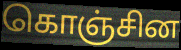
கொஞ்சின